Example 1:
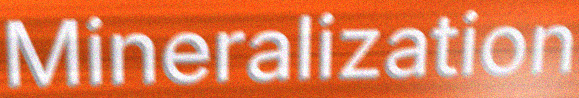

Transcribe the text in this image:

Mineralization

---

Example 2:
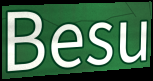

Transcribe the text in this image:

Besu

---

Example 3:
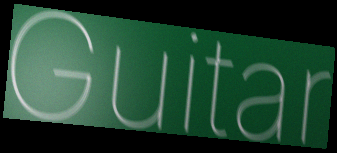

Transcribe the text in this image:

Guitar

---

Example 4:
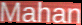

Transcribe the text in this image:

Mahan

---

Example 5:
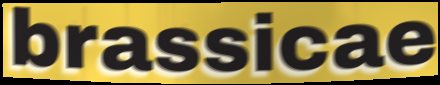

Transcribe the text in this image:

brassicae